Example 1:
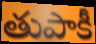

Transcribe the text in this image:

తుపాకీ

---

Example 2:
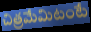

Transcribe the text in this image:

చిత్రమేమిటంటే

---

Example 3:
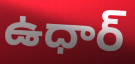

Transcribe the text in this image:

ఉధార్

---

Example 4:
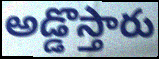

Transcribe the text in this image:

అడ్డొస్తారు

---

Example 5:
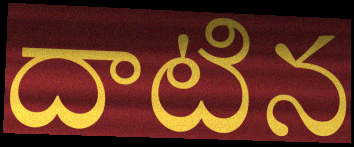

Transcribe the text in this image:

దాటిన